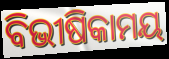
ବିଭୀଷିକାମୟ